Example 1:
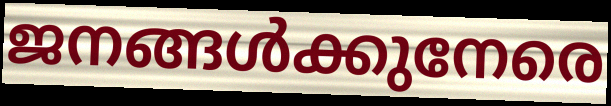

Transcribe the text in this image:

ജനങ്ങൾക്കുനേരെ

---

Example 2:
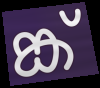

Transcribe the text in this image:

ങ്ക്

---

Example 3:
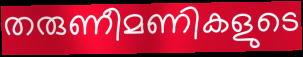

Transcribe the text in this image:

തരുണീമണികളുടെ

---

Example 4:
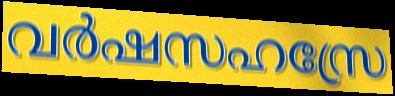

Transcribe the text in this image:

വർഷസഹസ്രേ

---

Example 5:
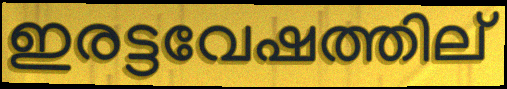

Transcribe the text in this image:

ഇരട്ടവേഷത്തില്